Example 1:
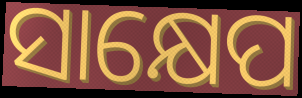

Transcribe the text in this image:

ସାକ୍ଷେପ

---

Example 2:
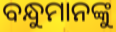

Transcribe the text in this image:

ବନ୍ଧୁମାନଙ୍କୁ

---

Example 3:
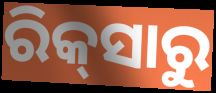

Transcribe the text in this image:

ରିକ୍‌ସାରୁ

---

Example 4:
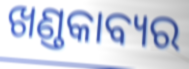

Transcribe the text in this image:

ଖଣ୍ଡକାବ୍ୟର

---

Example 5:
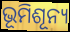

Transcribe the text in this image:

ଭୂମିଶୂନ୍ୟ